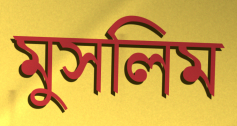
মুসলিম